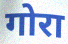
गोरा